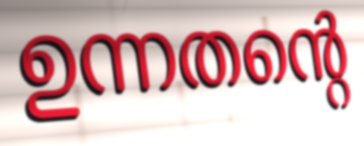
ഉന്നതന്റെ